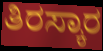
ತಿರಸ್ಕಾರ